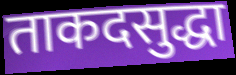
ताकदसुद्धा